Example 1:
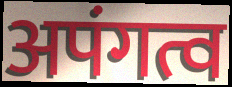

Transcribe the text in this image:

अपंगत्व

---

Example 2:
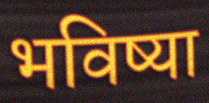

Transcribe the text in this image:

भविष्या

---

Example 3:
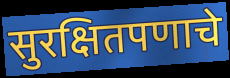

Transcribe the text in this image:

सुरक्षितपणाचे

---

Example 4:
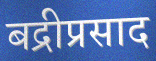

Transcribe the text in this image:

बद्रीप्रसाद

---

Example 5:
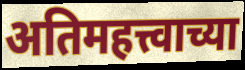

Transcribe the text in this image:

अतिमहत्त्वाच्या